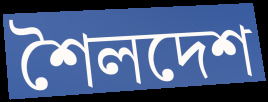
শৈলদেশ